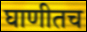
घाणीतच